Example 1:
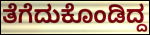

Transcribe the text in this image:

ತೆಗೆದುಕೊಂಡಿದ್ದ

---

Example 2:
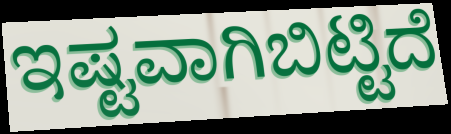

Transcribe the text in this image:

ಇಷ್ಟವಾಗಿಬಿಟ್ಟಿದೆ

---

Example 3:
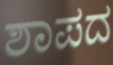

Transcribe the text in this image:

ಶಾಪದ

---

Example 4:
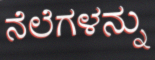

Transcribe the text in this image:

ನೆಲೆಗಳನ್ನು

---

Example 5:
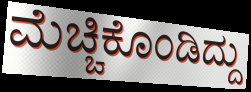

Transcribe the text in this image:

ಮೆಚ್ಚಿಕೊಂಡಿದ್ದು